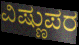
ವಿಷ್ಣುಪರ